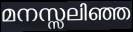
മനസ്സലിഞ്ഞ